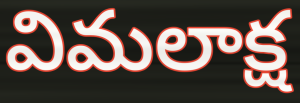
విమలాక్ష